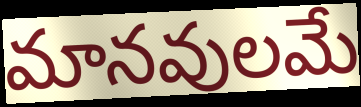
మానవులమే